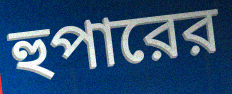
হুপারের